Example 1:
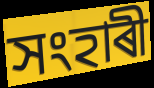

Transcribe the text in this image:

সংহাৰী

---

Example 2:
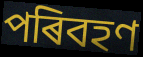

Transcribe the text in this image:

পৰিবহণ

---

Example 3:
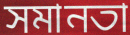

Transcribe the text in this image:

সমানতা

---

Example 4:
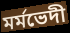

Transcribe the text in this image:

মৰ্মভেদী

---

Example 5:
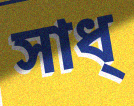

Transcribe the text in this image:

সাধ্